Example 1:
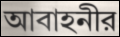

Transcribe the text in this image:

আবাহনীর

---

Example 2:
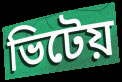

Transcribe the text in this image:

ভিটেয়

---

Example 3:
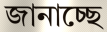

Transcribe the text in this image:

জানাচ্ছে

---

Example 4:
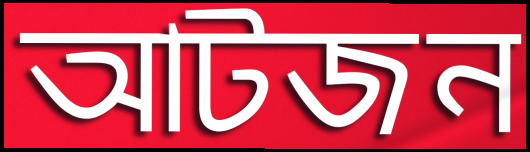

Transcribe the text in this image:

আটজন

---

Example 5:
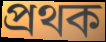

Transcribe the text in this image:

প্রথক